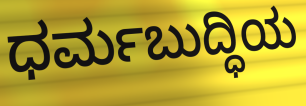
ಧರ್ಮಬುದ್ಧಿಯ